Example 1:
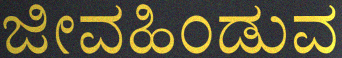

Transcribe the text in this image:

ಜೀವಹಿಂಡುವ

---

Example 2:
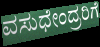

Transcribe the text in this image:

ವಸುಧೇಂದ್ರರಿಗೆ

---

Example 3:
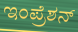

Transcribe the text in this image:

ಇಂಪ್ರೆಶನ್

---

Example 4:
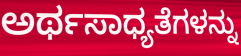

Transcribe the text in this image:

ಅರ್ಥಸಾಧ್ಯತೆಗಳನ್ನು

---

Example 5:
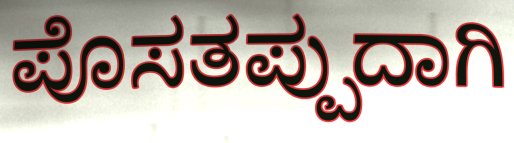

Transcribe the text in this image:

ಪೊಸತಪ್ಪುದಾಗಿ